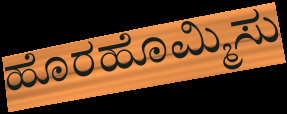
ಹೊರಹೊಮ್ಮಿಸು